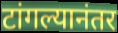
टांगल्यानंतर